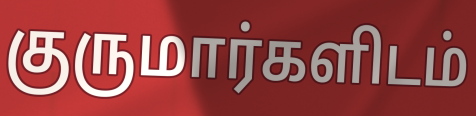
குருமார்களிடம்